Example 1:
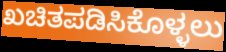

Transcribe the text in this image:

ಖಚಿತಪಡಿಸಿಕೊಳ್ಳಲು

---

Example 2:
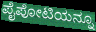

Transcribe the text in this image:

ಪೈಪೋಟಿಯನ್ನೂ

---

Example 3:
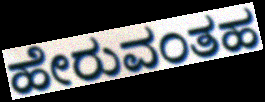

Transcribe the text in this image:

ಹೇರುವಂತಹ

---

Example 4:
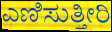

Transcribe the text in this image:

ಎಣಿಸುತ್ತೀರಿ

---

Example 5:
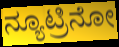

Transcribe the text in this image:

ನ್ಯೂಟ್ರಿನೋ